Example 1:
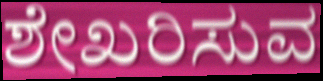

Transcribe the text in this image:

ಶೇಖರಿಸುವ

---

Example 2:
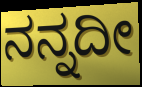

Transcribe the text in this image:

ನನ್ನದೀ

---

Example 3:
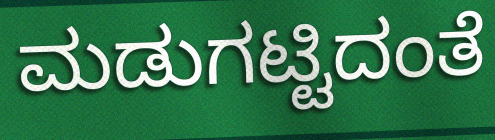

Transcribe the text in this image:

ಮಡುಗಟ್ಟಿದಂತೆ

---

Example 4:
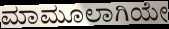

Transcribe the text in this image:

ಮಾಮೂಲಾಗಿಯೇ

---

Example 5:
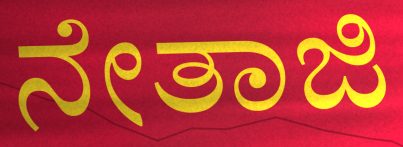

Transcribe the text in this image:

ನೇತಾಜಿ